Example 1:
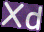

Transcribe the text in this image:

Xd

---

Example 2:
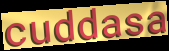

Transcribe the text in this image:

cuddasa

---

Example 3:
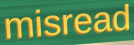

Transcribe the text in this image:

misread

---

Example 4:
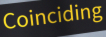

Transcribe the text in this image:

Coinciding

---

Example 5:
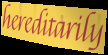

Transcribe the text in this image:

hereditarily